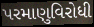
પરમાણુવિરોધી